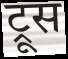
ट्रूस